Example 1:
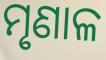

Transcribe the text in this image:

ମୃଣାଳ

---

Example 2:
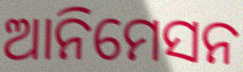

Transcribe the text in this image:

ଆନିମେସନ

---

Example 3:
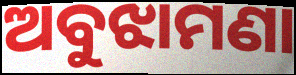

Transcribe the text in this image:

ଅବୁଝାମଣା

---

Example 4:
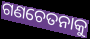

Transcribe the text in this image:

ଗଣଚେତନାକୁ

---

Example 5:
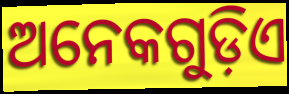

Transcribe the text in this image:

ଅନେକଗୁଡ଼ିଏ